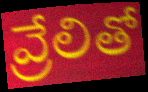
వ్రేలితో